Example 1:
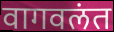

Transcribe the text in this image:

वागवलंत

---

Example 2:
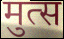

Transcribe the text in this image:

मुत्स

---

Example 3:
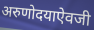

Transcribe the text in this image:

अरुणोदयाऐवजी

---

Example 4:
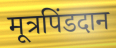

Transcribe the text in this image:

मूत्रपिंडदान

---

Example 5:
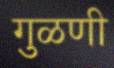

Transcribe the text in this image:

गुळणी